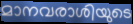
മാനവരാശിയുടെ